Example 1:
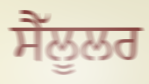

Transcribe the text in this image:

ਸੈੱਲੂਲਰ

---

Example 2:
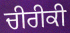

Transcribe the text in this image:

ਚੀਰੀਕੀ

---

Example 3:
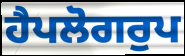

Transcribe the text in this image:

ਹੈਪਲੋਗਰੁਪ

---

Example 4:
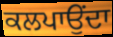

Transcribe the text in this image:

ਕਲਪਾਉਂਦਾ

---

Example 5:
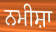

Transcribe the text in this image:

ਨਮੀਸ਼ਾ